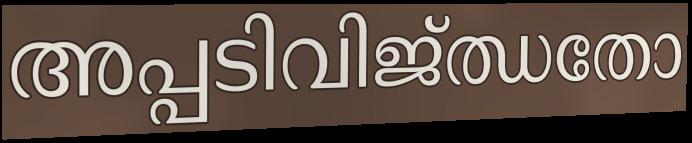
അപ്പടിവിജ്ഝതോ